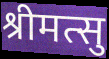
श्रीमत्सु